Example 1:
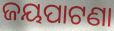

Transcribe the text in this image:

ଜୟପାଟଣା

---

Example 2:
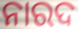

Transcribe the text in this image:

ନାରଦ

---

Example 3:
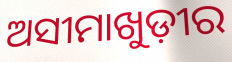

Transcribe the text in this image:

ଅସୀମାଖୁଡ଼ୀର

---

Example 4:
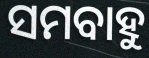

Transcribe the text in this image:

ସମବାହୁ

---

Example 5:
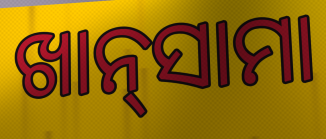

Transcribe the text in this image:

ଖାନ୍‌ସାମା